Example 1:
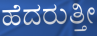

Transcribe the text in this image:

ಹೆದರುತ್ತೀ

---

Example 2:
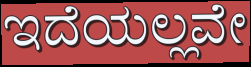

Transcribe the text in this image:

ಇದೆಯಲ್ಲವೇ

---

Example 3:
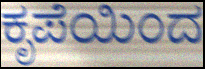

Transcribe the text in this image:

ಕೃಪೆಯಿಂದ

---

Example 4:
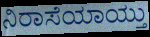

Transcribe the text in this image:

ನಿರಾಸೆಯಾಯ್ತು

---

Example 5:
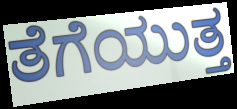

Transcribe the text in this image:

ತೆಗೆಯುತ್ತ